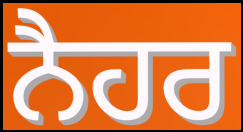
ਨੈਹਰ